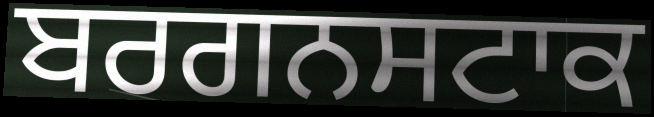
ਬਰਗਨਸਟਾਕ